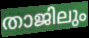
താജിലും